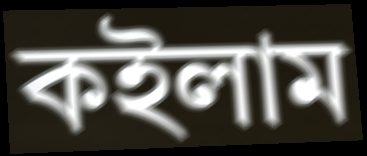
কইলাম